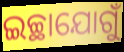
ଇଚ୍ଛାଯୋଗୁଁ